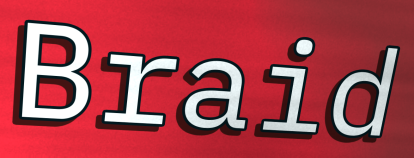
Braid